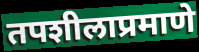
तपशीलाप्रमाणे